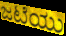
ಜಟೆಯು